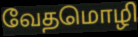
வேதமொழி